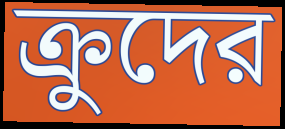
ক্রুদের